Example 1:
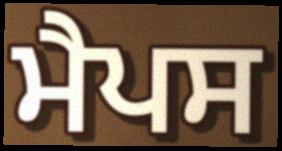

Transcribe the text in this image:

ਮੈਪਸ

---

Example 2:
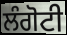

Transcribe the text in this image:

ਲੰਗੋਟੀ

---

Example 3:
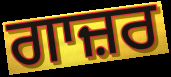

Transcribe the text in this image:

ਗਾਜ਼ਰ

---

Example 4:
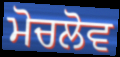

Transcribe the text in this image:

ਮੋਚਲੋਵ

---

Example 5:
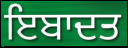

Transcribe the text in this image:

ਇਬਾਦਤ